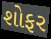
શોફર